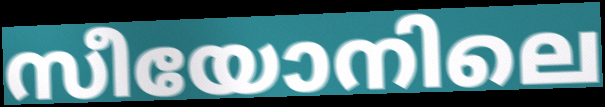
സീയോനിലെ